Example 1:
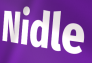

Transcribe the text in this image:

Nidle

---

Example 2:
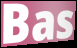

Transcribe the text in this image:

Bas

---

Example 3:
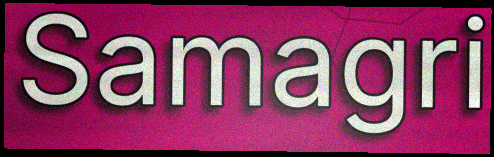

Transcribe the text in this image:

Samagri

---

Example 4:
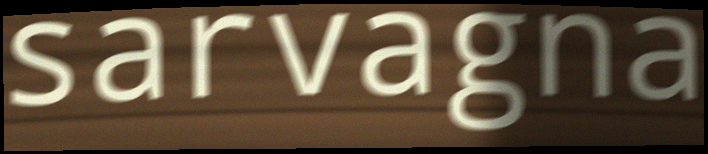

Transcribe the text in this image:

sarvagna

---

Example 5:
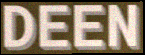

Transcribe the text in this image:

DEEN